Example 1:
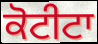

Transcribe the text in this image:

ਕੋਟੀਟਾ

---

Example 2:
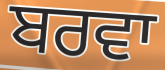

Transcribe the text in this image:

ਬਰਵਾ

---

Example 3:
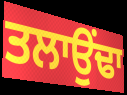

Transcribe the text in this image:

ਤਲਾਉਂਢਾ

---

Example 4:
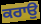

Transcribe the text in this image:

ਕਰਾਉ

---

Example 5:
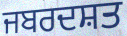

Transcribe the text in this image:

ਜਬਰਦਸ਼ਤ